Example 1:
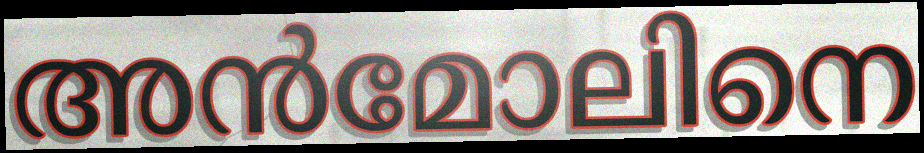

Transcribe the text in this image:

അൻമോലിനെ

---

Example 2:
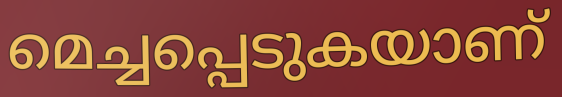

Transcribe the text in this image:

മെച്ചപ്പെടുകയാണ്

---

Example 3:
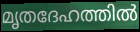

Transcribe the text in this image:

മൃതദേഹത്തിൽ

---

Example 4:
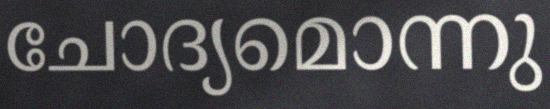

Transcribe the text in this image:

ചോദ്യമൊന്നു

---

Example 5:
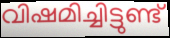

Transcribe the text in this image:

വിഷമിച്ചിട്ടുണ്ട്